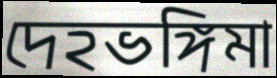
দেহভঙ্গিমা